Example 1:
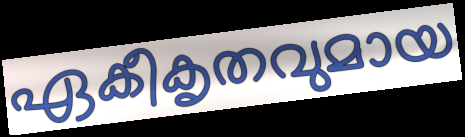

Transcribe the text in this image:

ഏകീകൃതവുമായ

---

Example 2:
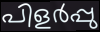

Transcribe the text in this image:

പിളർപ്പു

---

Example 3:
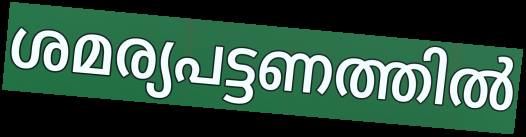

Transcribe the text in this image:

ശമര്യപട്ടണത്തിൽ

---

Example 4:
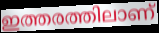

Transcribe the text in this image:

ഇത്തരത്തിലാണ്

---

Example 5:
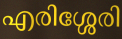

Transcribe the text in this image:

എരിശ്ശേരി